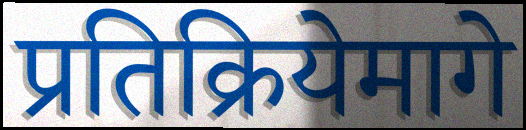
प्रतिक्रियेमागे